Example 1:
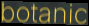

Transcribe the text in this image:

botanic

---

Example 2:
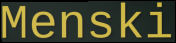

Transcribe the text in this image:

Menski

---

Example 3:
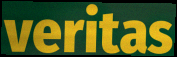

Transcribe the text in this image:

veritas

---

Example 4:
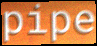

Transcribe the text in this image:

pipe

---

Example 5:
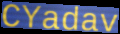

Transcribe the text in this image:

CYadav